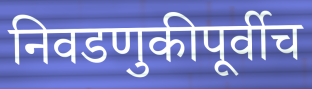
निवडणुकीपूर्वीच